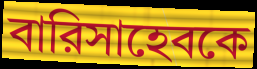
বারিসাহেবকে